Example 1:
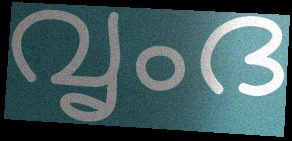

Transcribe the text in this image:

വൃംദ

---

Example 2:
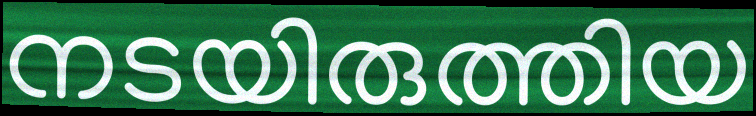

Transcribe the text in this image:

നടയിരുത്തിയ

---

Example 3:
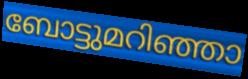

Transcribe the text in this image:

ബോട്ടുമറിഞ്ഞാ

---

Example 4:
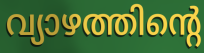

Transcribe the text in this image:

വ്യാഴത്തിന്റെ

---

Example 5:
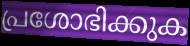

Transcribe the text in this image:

പ്രശോഭിക്കുക